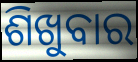
ଶିଖୁବାର